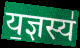
य॒ज्ञस्य॑